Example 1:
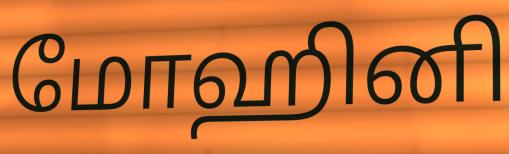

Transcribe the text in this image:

மோஹினி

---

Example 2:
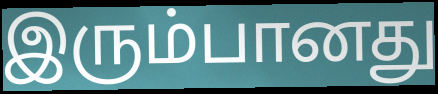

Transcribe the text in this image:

இரும்பானது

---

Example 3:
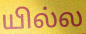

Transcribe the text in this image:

யில்ல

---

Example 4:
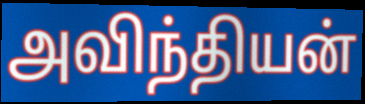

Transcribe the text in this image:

அவிந்தியன்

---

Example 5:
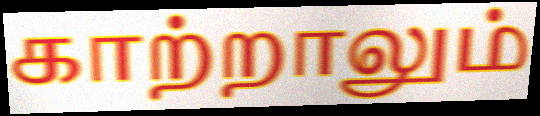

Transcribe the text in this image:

காற்றாலும்